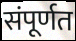
संपूर्णत